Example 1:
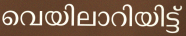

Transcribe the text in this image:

വെയിലാറിയിട്ട്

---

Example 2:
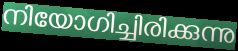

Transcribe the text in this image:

നിയോഗിച്ചിരിക്കുന്നു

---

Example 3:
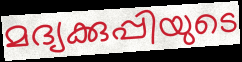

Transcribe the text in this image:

മദ്യക്കുപ്പിയുടെ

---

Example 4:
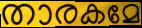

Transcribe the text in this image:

താരകമേ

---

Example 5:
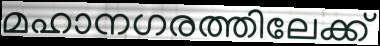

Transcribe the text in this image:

മഹാനഗരത്തിലേക്ക്